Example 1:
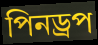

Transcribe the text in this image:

পিনড্রপ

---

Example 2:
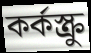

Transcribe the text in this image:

কর্কস্ক্রু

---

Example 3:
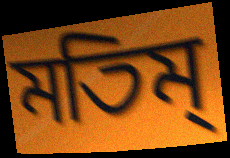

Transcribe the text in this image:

মতিম্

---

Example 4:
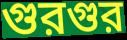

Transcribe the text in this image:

গুরগুর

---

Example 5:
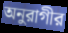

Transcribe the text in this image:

অনুরাগীর